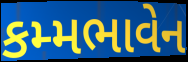
કમ્મભાવેન